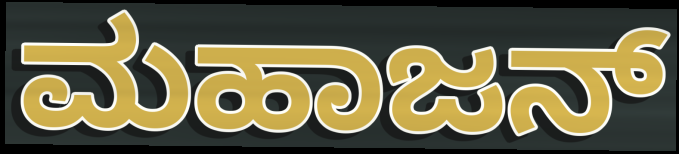
ಮಹಾಜನ್